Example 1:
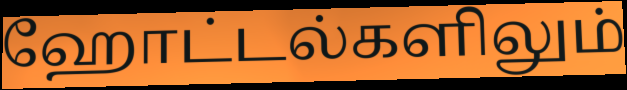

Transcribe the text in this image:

ஹோட்டல்களிலும்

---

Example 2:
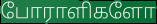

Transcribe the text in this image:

போராளிகளோ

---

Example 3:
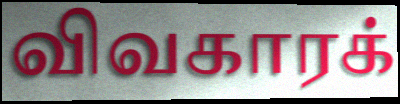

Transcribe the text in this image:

விவகாரக்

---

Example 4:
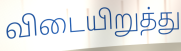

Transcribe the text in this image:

விடையிறுத்து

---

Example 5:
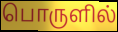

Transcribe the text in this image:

பொருளில்